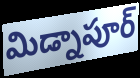
మిడ్నాపూర్